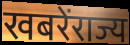
खबरेंराज्य